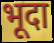
भूदा